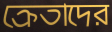
ক্রেতাদের